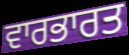
ਵਾਰਭਾਰਤ